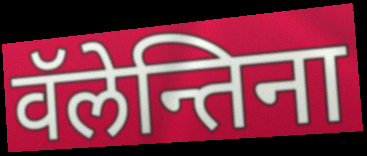
वॅलेन्तिना